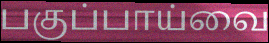
பகுப்பாய்வை